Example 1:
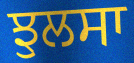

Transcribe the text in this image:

ਝੁਲਸਾ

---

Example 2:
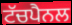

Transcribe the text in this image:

ਟੱਚਪੈਨਲ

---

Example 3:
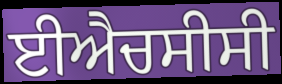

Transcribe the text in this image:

ਈਐਚਸੀਸੀ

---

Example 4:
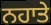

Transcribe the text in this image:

ਨਹਾਤੇ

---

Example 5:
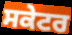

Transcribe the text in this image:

ਸਕੇਟਰ